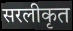
सरलीकृत